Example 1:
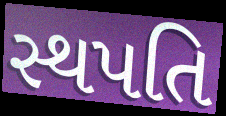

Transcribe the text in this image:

સ્થપતિ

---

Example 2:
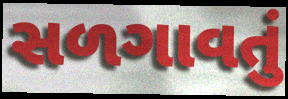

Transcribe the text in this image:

સળગાવતું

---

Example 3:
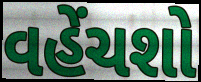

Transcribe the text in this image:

વહેંચશો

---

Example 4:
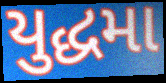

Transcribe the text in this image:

યુદ્ધમા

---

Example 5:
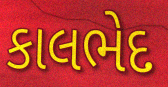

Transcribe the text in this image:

કાલભેદ